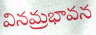
వినమ్రభావన